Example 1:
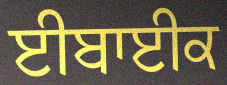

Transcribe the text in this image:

ਈਬਾਈਕ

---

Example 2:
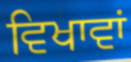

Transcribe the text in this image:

ਵਿਖਾਵਾਂ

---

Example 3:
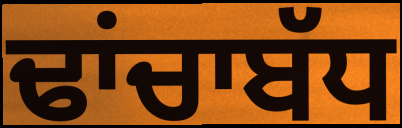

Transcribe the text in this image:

ਢਾਂਚਾਬੱਧ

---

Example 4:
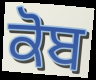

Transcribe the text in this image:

ਕੋਬ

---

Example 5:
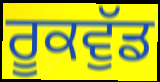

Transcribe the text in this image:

ਰੂਕਵੁੱਡ